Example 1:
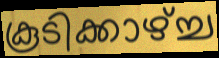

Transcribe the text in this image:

കൂടിക്കാഴ്ച്ച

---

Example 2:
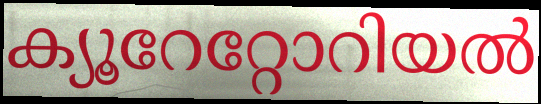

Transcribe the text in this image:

ക്യൂറേറ്റോറിയൽ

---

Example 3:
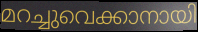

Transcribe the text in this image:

മറച്ചുവെക്കാനായി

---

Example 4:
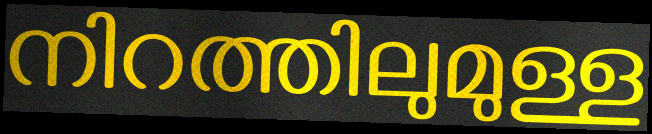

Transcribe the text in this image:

നിറത്തിലുമുള്ള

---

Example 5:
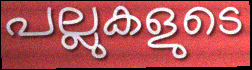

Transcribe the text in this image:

പല്ലുകളുടെ